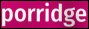
porridge